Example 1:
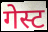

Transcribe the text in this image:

गेस्ट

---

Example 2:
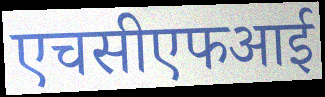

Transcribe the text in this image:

एचसीएफआई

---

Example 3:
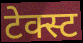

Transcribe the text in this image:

टेक्स्ट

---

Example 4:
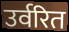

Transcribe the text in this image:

उर्वरित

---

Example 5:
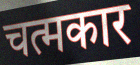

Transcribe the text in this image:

चत्मकार